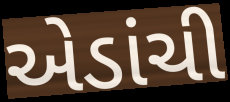
એડાંચી